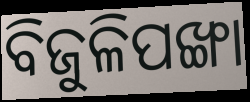
ବିଜୁଳିପଙ୍ଖା